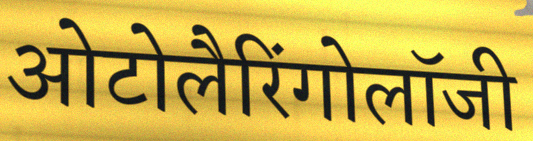
ओटोलैरिंगोलॉजी